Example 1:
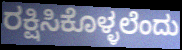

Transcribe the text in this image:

ರಕ್ಷಿಸಿಕೊಳ್ಳಲೆಂದು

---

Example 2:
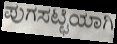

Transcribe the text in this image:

ಪುಗಸಟ್ಟೆಯಾಗಿ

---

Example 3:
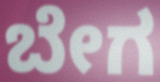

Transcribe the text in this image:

ಬೇಗ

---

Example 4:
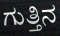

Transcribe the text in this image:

ಗುತ್ತಿನ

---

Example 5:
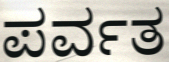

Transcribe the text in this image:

ಪರ್ವತ